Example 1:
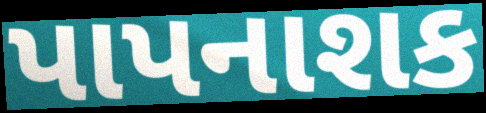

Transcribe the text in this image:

પાપનાશક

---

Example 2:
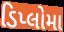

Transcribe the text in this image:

ડિપ્લોમા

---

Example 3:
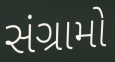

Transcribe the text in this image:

સંગ્રામો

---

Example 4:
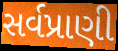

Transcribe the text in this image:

સર્વપ્રાણી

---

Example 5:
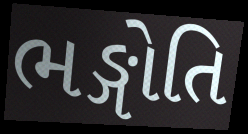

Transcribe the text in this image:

ભઙ્ગોતિ